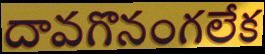
దావగొనంగలేక